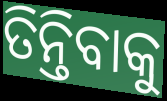
ତିନ୍ତିବାକୁ